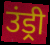
उंड्री